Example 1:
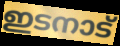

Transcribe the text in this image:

ഇടനാട്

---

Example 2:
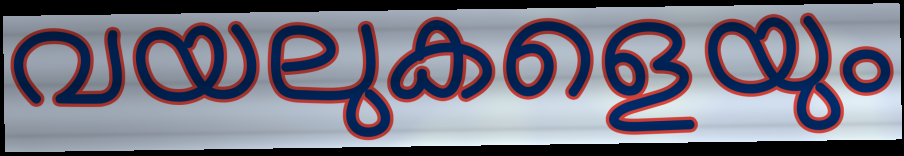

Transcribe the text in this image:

വയലുകളെയും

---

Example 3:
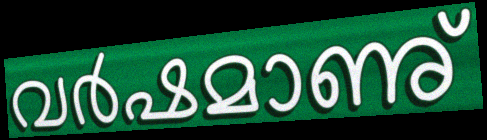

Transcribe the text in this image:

വർഷമാണു്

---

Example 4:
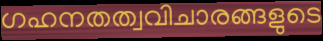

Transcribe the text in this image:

ഗഹനതത്വവിചാരങ്ങളുടെ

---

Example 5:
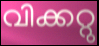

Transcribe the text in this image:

വിക്കറ്റു